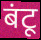
बंटू